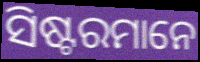
ସିଷ୍ଟରମାନେ